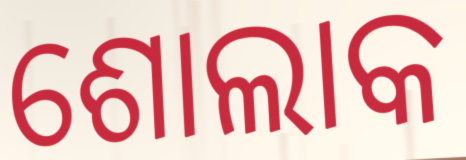
ଶୋଲାକ